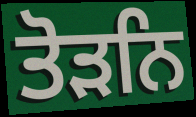
ਤੋੜਨਿ